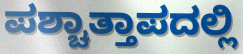
ಪಶ್ಚಾತ್ತಾಪದಲ್ಲಿ